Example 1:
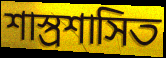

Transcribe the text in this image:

শাস্ত্রশাসিত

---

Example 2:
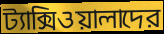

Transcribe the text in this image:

ট্যাক্সিওয়ালাদের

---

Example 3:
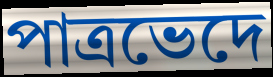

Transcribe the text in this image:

পাত্রভেদে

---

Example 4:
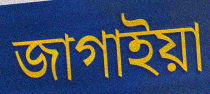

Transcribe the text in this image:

জাগাইয়া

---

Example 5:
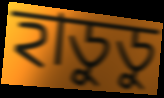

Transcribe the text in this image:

হাডুডু